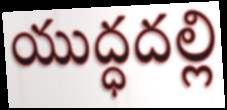
యుద్ధదల్లి